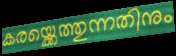
കരയ്ക്കെത്തുന്നതിനും